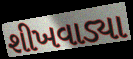
શીખવાડ્યા